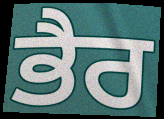
ਭੈਰ